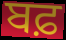
ਬਫ਼